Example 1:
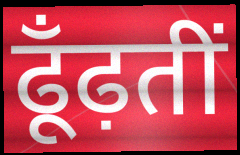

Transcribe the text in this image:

ढूँढ़तीं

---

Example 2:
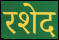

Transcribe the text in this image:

रशेद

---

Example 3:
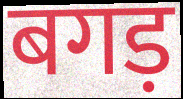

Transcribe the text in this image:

बगड़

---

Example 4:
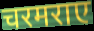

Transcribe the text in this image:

चरमराए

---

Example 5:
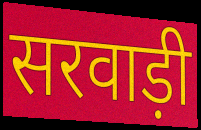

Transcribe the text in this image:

सरवाड़ी